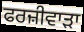
ਫਰਜ਼ੀਵਾਡ਼ਾ